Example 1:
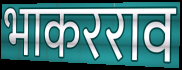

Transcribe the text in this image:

भाकरराव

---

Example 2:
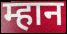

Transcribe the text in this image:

म्हान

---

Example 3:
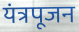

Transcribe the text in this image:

यंत्रपूजन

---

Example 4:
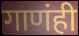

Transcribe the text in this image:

गाणंही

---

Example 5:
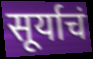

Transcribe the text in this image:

सूर्याचं